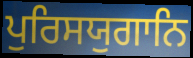
ਪੁਰਿਸਯੁਗਾਨਿ